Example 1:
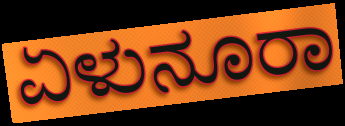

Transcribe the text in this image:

ಏಳುನೂರಾ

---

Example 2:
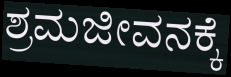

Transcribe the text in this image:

ಶ್ರಮಜೀವನಕ್ಕೆ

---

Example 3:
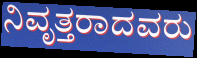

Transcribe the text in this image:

ನಿವೃತ್ತರಾದವರು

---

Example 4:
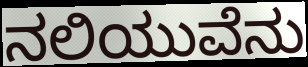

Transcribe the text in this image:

ನಲಿಯುವೆನು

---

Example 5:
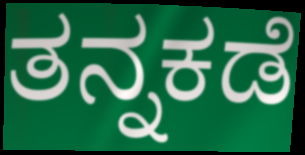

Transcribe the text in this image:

ತನ್ನಕಡೆ